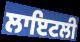
ਲਾਇਟਲੀ